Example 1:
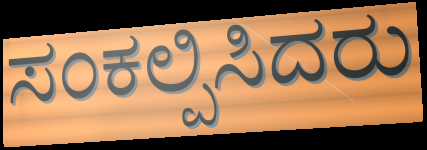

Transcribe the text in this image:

ಸಂಕಲ್ಪಿಸಿದರು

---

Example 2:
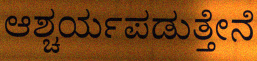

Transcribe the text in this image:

ಆಶ್ಚರ್ಯಪಡುತ್ತೇನೆ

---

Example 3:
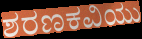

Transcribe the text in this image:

ಶರಣಕವಿಯು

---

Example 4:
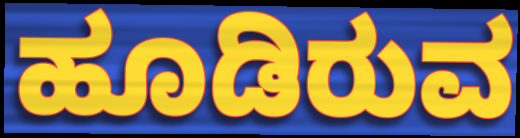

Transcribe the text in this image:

ಹೂಡಿರುವ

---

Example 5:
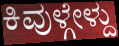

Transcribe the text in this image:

ಕಿವುಳ್ಗೇಳ್ದು